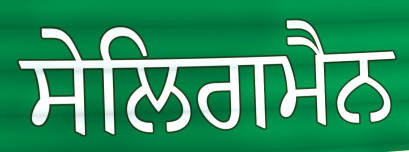
ਸੇਲਿਗਮੈਨ